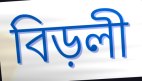
বিড়লী